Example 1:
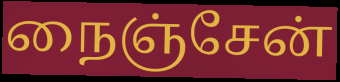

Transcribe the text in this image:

நைஞ்சேன்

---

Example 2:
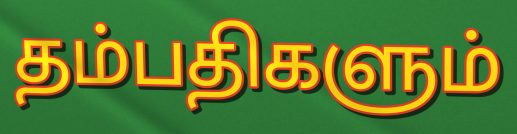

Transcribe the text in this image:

தம்பதிகளும்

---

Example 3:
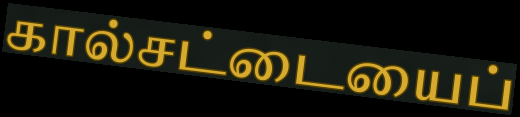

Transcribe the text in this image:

கால்சட்டையைப்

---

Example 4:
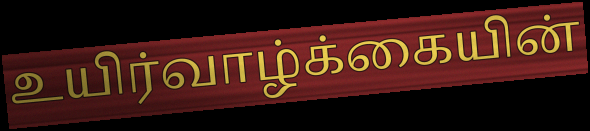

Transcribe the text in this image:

உயிர்வாழ்க்கையின்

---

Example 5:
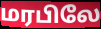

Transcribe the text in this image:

மரபிலே